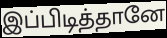
இப்பிடித்தானே